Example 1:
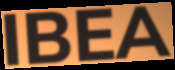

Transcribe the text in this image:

IBEA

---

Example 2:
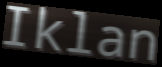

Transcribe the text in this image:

Iklan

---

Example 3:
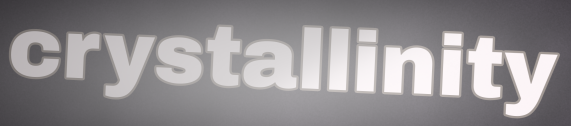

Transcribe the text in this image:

crystallinity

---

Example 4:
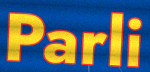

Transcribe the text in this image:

Parli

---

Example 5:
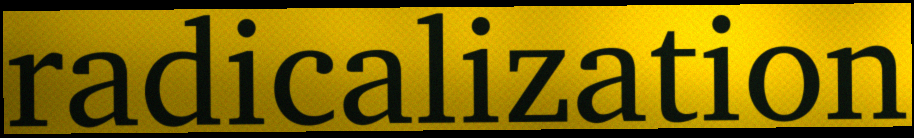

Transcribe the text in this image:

radicalization